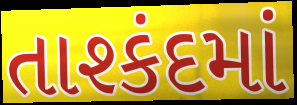
તાશ્કંદમાં